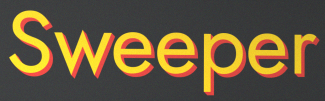
Sweeper